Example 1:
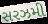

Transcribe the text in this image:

સરઝમી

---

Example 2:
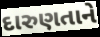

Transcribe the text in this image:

દારુણતાને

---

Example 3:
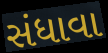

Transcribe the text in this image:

સંધાવા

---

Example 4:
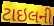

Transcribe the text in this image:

ટાઇલની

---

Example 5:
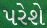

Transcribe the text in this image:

પરેશે